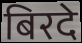
बिरदे